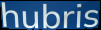
hubris